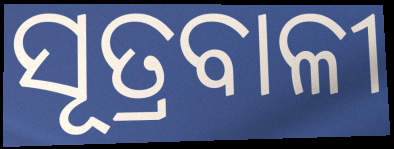
ସୂତ୍ରବାଳୀ